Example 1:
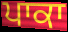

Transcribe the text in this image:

ਪਾਕਾ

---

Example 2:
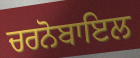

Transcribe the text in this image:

ਚਰਨੋਬਾਇਲ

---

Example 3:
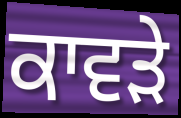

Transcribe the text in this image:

ਕਾਵੜੇ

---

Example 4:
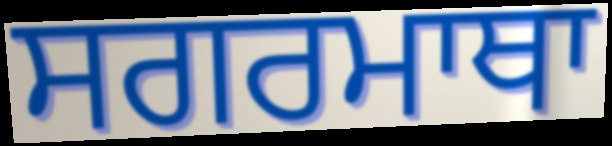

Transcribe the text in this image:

ਸਗਰਮਾਥਾ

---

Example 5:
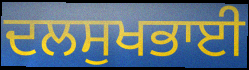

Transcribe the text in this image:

ਦਲਸੁਖਭਾਈ